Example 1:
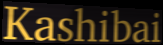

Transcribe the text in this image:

Kashibai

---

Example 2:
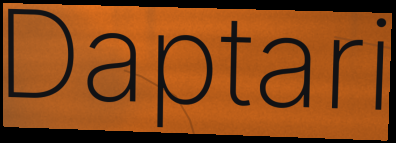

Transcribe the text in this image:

Daptari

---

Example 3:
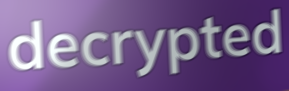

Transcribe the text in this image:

decrypted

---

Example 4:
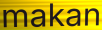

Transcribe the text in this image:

makan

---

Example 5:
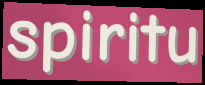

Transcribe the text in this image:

spiritu